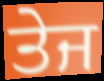
ਤੇਜ